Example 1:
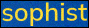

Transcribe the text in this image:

sophist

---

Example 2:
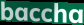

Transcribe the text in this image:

baccha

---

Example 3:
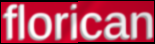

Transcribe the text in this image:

florican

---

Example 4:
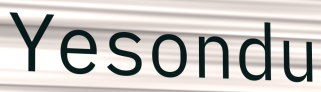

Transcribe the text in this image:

Yesondu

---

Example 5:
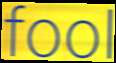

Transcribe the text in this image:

fool